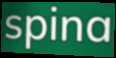
spina